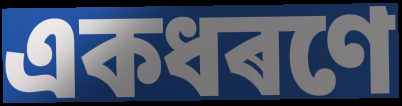
একধৰণে